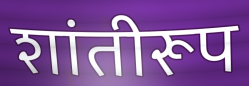
शांतीरूप